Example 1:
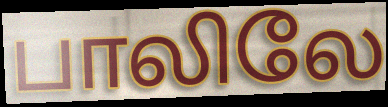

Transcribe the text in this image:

பாலிலே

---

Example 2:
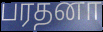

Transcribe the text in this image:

பரதனா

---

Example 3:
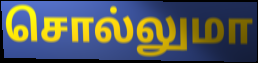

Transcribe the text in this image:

சொல்லுமா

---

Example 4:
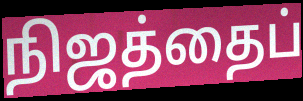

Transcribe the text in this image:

நிஜத்தைப்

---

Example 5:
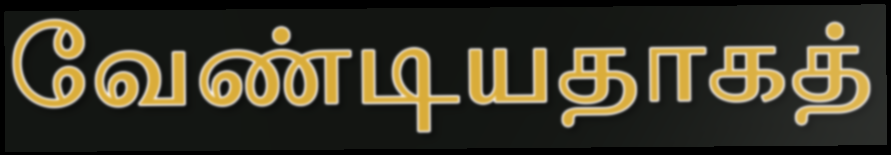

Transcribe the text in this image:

வேண்டியதாகத்